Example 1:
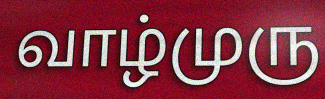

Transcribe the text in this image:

வாழ்முரு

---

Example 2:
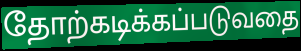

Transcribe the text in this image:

தோற்கடிக்கப்படுவதை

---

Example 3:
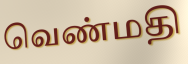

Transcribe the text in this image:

வெண்மதி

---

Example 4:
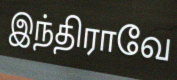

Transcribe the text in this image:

இந்திராவே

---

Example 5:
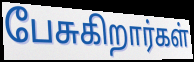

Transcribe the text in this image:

பேசுகிறார்கள்